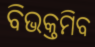
ବିଭକ୍ତମିବ